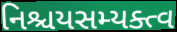
નિશ્ચયસમ્યક્ત્વ